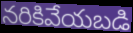
నరికివేయబడి